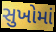
સુખોમાં